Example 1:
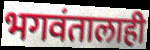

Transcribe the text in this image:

भगवंतालाही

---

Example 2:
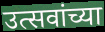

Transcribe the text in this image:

उत्सवांच्या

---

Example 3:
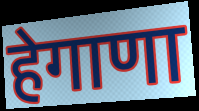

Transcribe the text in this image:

हेगाणा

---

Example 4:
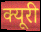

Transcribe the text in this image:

क्यूरी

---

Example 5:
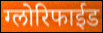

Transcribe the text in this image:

ग्लोरिफाईड